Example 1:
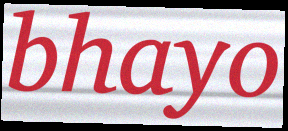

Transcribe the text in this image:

bhayo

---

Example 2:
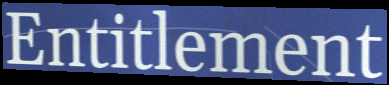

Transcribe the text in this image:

Entitlement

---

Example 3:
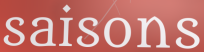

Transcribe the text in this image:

saisons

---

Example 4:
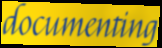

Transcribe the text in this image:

documenting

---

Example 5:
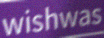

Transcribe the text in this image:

wishwas